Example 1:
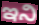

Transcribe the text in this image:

ఇని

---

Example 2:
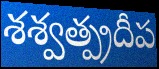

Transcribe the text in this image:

శశ్వత్ప్రదీప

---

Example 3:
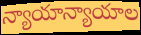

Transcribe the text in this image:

న్యాయాన్యాయాల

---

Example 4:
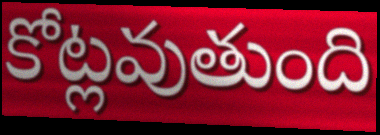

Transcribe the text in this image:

కోట్లవుతుంది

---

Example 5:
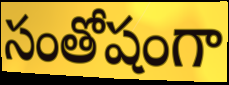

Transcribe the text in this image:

సంతోషంగా